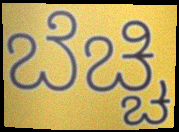
ಬೆಚ್ಚಿ